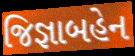
જિજ્ઞાબહેન